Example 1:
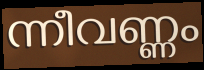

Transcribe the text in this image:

ന്നീവണ്ണം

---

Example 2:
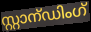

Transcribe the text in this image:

സ്റ്റാന്ഡിംഗ്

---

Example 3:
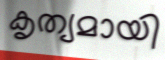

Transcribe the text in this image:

കൃത്യമായി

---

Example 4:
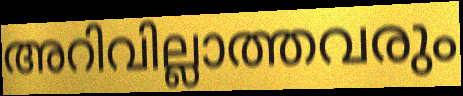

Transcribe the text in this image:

അറിവില്ലാത്തവരും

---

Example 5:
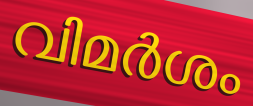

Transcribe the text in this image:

വിമർശം